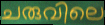
ചരുവിലെ